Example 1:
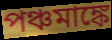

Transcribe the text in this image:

পঞ্চমাঙ্কে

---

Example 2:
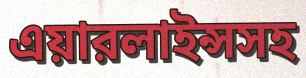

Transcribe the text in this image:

এয়ারলাইন্সসহ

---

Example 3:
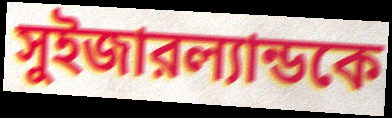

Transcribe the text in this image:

সুইজারল্যান্ডকে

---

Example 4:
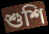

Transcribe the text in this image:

শুশি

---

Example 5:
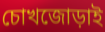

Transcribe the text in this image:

চোখজোড়াই